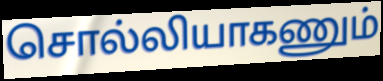
சொல்லியாகணும்